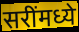
सरींमध्ये